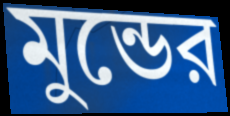
মুন্ডের